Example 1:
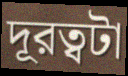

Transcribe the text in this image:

দূরত্বটা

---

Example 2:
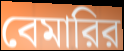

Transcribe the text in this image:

বেমারির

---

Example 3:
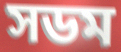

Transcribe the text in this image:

সডম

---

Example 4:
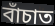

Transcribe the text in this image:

বাঁচাত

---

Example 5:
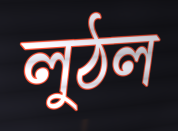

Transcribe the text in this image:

লুঠল